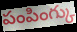
పంపింగ్కు